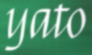
yato